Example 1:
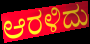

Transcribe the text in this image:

ಆರಳಿದು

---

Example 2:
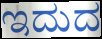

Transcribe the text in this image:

ಇದುದ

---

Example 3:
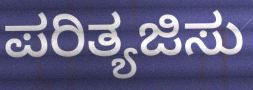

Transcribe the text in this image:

ಪರಿತ್ಯಜಿಸು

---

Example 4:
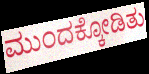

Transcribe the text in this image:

ಮುಂದಕ್ಕೋಡಿತು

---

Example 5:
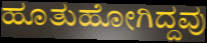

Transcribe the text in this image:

ಹೂತುಹೋಗಿದ್ದವು